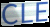
CLE